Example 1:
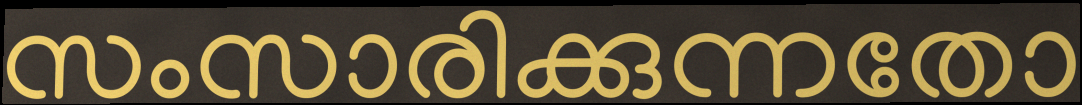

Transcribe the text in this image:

സംസാരിക്കുന്നതോ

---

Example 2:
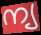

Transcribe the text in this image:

ന്യ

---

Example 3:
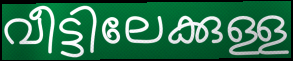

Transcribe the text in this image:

വീട്ടിലേക്കുള്ള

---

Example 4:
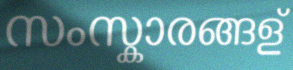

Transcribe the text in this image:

സംസ്കാരങ്ങള്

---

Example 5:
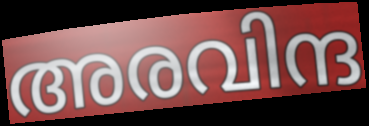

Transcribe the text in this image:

അരവിന്ദ